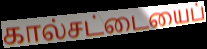
கால்சட்டையைப்